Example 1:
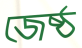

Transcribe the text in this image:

জেষ্ঠ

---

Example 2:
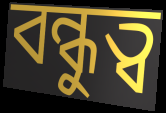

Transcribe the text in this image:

বন্ধুত্ব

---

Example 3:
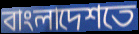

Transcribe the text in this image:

বাংলাদেশতে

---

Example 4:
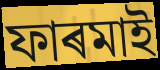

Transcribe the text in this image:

ফাৰমাই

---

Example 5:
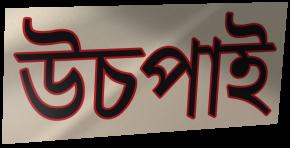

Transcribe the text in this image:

উচপাই